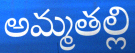
అమ్మతల్లి